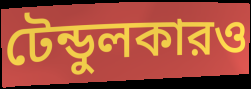
টেন্ডুলকারও